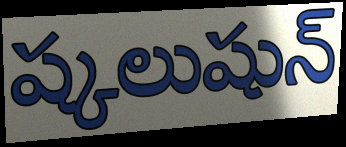
ష్కలుషున్